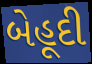
બેહૂદી